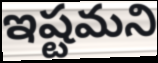
ఇష్టమని